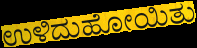
ಉಳಿದುಹೋಯಿತು